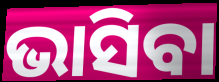
ଭାସିବା